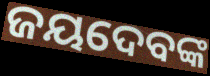
ଜୟଦେବଙ୍କ